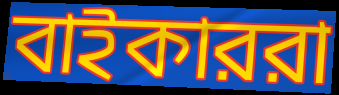
বাইকাররা